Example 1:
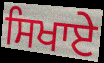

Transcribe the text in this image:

ਸਿਖਾਏੇ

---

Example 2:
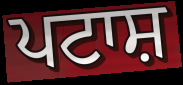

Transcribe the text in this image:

ਪਟਾਸ਼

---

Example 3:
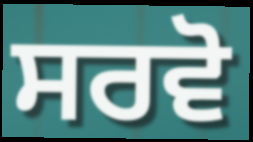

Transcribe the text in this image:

ਸਰਵੋ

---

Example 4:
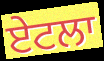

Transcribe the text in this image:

ਏਟਲਾ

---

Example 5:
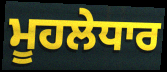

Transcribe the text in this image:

ਮੂਹਲੇਧਾਰ